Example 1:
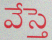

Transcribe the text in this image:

వేస్తె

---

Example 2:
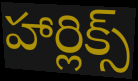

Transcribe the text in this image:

హార్లిక్స్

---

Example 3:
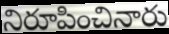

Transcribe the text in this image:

నిరూపించినారు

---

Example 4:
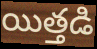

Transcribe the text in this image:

యిత్తడి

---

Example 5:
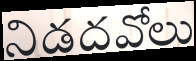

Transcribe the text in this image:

నిడదవోలు